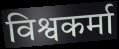
विश्वकर्मा